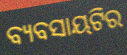
ବ୍ୟବସାୟଟିର